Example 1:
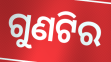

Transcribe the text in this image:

ଗୁଣଟିର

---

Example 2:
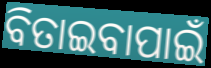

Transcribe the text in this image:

ବିତାଇବାପାଇଁ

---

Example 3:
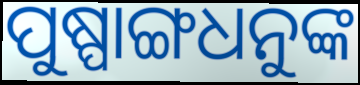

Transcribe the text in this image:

ପୁଷ୍ପାଙ୍ଗଧନୁଙ୍କ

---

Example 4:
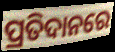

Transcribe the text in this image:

ପ୍ରତିଦାନରେ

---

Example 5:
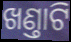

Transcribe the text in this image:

ଖଣ୍ତାଟି